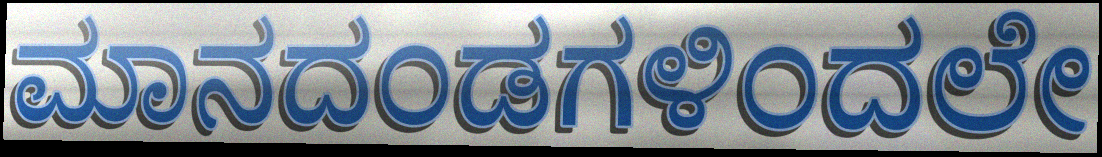
ಮಾನದಂಡಗಳಿಂದಲೇ